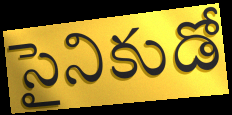
సైనికుడో